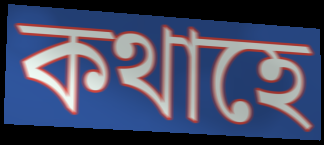
কথাহে